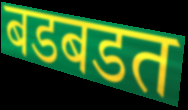
बडबडत